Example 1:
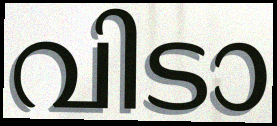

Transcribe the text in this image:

വിടാ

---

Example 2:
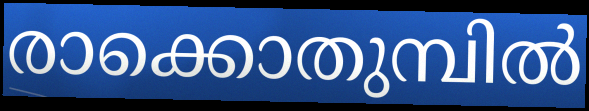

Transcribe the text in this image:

രാക്കൊതുമ്പിൽ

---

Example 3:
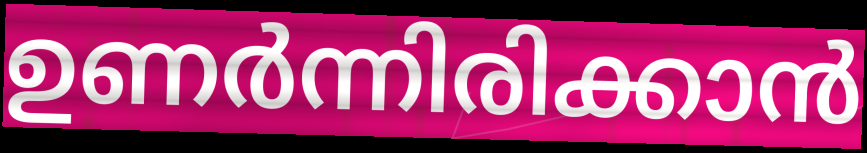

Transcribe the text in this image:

ഉണർന്നിരിക്കാൻ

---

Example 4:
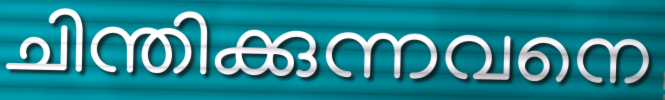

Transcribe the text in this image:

ചിന്തിക്കുന്നവനെ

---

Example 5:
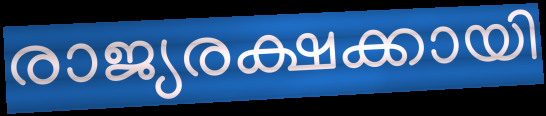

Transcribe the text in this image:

രാജ്യരക്ഷക്കായി